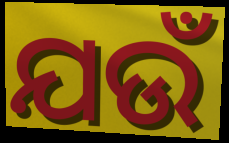
ଯଉଁ